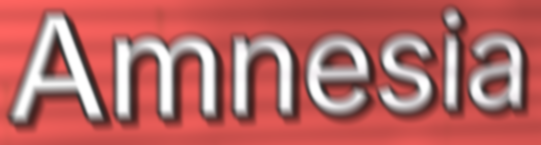
Amnesia